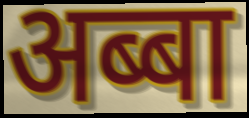
अब्बा